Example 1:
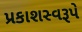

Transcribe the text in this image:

પ્રકાશસ્વરૂપે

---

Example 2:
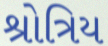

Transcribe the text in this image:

શ્રોત્રિય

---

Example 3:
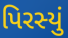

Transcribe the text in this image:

પિરસ્યું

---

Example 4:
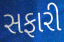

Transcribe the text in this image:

સફારી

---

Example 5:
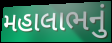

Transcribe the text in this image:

મહાલાભનું